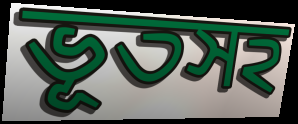
ভূতসহ